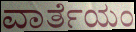
ವಾರ್ತೆಯಂ